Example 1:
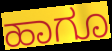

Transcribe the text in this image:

ಹಾಗೂ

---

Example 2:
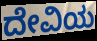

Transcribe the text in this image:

ದೇವಿಯ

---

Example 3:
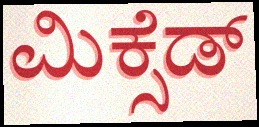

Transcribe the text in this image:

ಮಿಕ್ಸೆಡ್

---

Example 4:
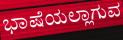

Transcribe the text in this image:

ಭಾಷೆಯಲ್ಲಾಗುವ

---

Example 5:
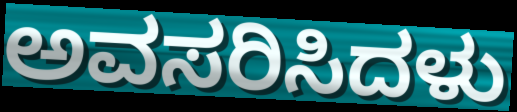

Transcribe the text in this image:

ಅವಸರಿಸಿದಳು